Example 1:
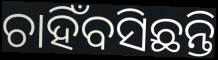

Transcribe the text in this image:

ଚାହିଁବସିଛନ୍ତି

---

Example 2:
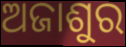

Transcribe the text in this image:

ଅଜାଶୁର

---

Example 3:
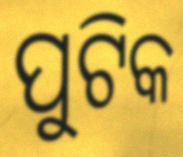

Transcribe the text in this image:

ପୁଟିକ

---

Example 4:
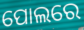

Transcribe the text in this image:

ପୋଲରେ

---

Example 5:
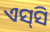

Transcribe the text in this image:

ଏସ୍‌ସି